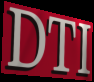
DTI